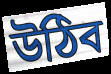
উঠিব